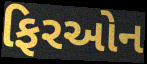
ફિરઓન